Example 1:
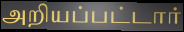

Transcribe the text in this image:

அறியப்பட்டார்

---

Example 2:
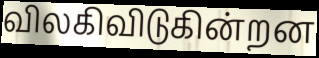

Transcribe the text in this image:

விலகிவிடுகின்றன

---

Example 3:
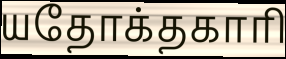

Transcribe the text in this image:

யதோக்தகாரி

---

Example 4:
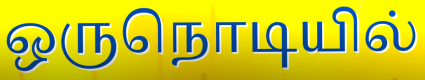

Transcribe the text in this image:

ஒருநொடியில்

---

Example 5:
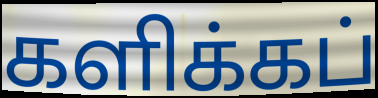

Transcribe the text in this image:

களிக்கப்